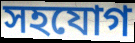
সহযোগ